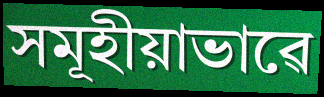
সমূহীয়াভাৱে